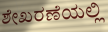
ಶೇಖರಣೆಯಲ್ಲಿ